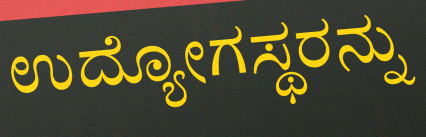
ಉದ್ಯೋಗಸ್ಥರನ್ನು